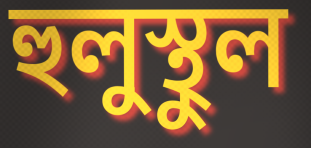
হুলুস্থুল